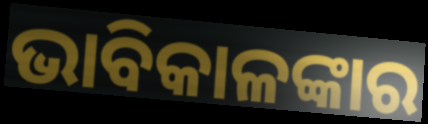
ଭାବିକାଳଙ୍କାର